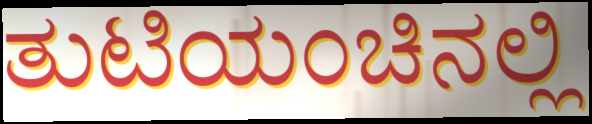
ತುಟಿಯಂಚಿನಲ್ಲಿ